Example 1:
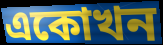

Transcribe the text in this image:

একোখন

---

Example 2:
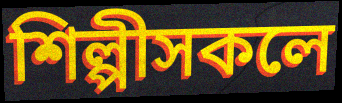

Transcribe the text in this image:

শিল্পীসকলে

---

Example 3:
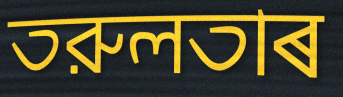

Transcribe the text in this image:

তৰুলতাৰ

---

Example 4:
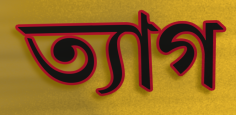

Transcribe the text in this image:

ত্যাগ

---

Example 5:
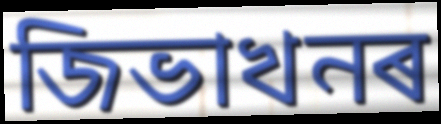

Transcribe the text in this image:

জিভাখনৰ